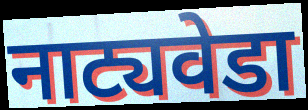
नाट्यवेडा